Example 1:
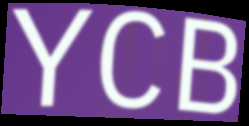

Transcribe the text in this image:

YCB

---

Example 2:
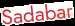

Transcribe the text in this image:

Sadabar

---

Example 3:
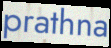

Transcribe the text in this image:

prathna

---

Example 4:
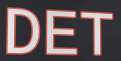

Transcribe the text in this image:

DET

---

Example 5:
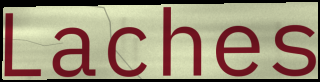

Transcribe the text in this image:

Laches